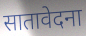
सातावेदना